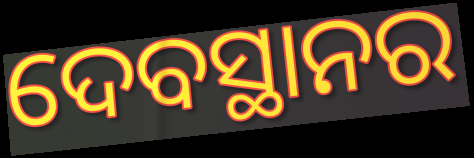
ଦେବସ୍ଥାନର